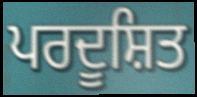
ਪਰਦੂਸ਼ਿਤ